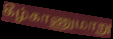
கீழ்காணுமாறு